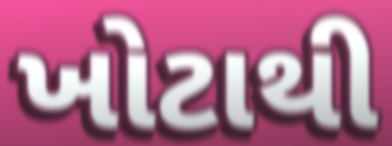
ખોટાથી